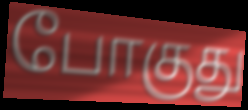
போகுது